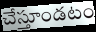
చేస్తూండటం